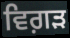
ਵਿਗ਼ੜ